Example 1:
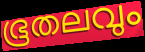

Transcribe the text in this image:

ഭൂതലവും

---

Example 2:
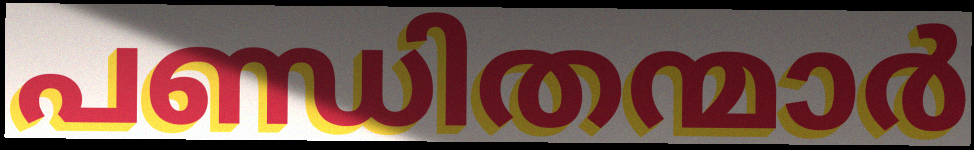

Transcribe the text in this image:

പണ്ഡിതന്മാർ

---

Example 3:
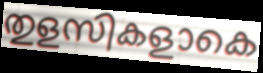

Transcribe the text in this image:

തുളസികളാകെ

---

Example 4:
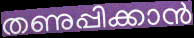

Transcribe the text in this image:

തണുപ്പിക്കാൻ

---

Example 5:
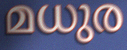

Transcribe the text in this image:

മധുര